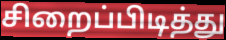
சிறைப்பிடித்து